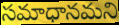
సమాధానమని